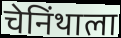
चेनिंथाला